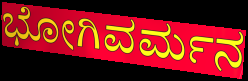
ಭೋಗಿವರ್ಮನ